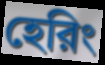
হেরিং